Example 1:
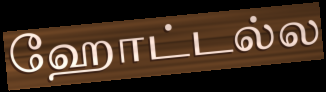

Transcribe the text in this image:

ஹோட்டல்ல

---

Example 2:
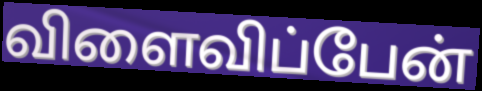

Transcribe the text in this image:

விளைவிப்பேன்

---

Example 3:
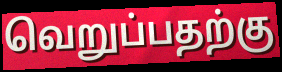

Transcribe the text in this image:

வெறுப்பதற்கு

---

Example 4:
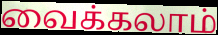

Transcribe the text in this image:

வைக்கலாம்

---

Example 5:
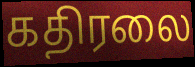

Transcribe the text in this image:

கதிரலை